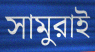
সামুরাই